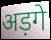
अड़गे